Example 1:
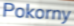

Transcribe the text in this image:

Pokorny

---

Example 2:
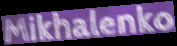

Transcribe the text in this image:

Mikhalenko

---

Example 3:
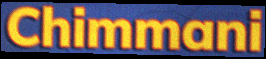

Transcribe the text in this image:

Chimmani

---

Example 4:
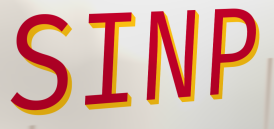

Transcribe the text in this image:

SINP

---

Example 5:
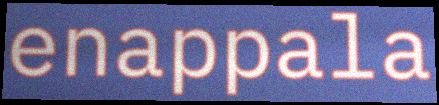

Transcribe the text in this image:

enappala